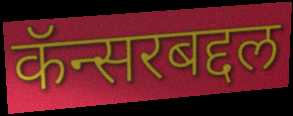
कॅन्सरबद्दल